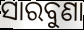
ସାରବୁଣା